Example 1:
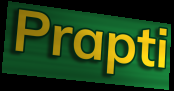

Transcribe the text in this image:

Prapti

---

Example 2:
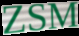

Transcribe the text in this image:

ZSM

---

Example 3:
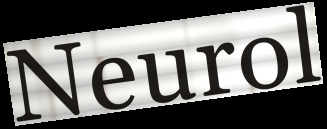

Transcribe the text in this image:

Neurol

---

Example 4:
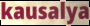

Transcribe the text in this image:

kausalya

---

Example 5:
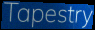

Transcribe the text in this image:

Tapestry